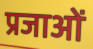
प्रजाओं